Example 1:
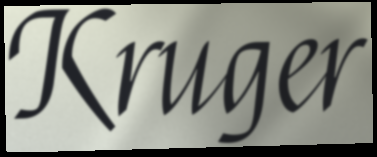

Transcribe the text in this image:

Kruger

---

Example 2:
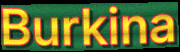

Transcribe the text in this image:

Burkina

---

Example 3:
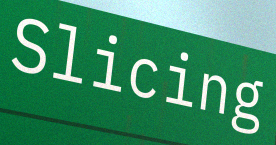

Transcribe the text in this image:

Slicing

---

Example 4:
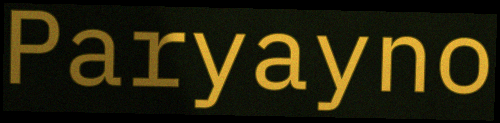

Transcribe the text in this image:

Paryayno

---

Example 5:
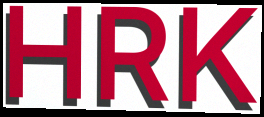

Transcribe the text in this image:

HRK